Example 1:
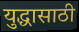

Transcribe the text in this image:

युद्धासाठी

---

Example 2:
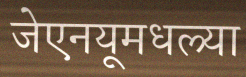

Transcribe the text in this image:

जेएनयूमधल्या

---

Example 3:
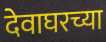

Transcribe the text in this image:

देवाघरच्या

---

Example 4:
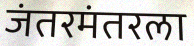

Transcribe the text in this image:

जंतरमंतरला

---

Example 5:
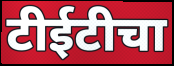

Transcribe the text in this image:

टीईटीचा